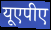
यूएपीए